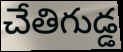
చేతిగుడ్డ